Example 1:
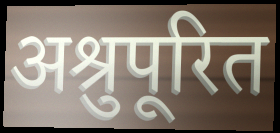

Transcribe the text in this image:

अश्रुपूरित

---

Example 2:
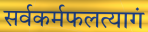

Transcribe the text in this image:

सर्वकर्मफलत्यागं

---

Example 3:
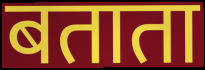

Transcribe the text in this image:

बताता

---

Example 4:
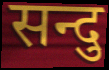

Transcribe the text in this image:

सन्दु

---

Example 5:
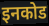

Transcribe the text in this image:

इनकोड